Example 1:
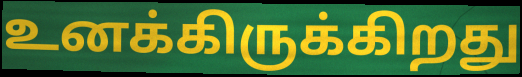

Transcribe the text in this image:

உனக்கிருக்கிறது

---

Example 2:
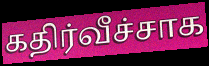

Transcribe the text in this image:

கதிர்வீச்சாக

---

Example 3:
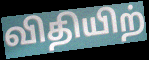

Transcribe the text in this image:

விதியிற்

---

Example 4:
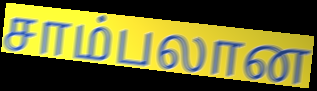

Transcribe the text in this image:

சாம்பலான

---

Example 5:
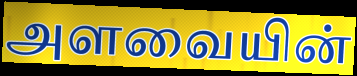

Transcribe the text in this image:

அளவையின்